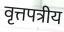
वृत्तपत्रीय